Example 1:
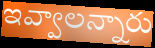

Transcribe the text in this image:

ఇవ్వాలన్నారు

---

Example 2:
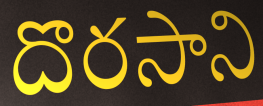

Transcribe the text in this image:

దొరసాని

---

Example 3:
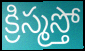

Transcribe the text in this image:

క్రిస్మస్తో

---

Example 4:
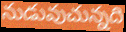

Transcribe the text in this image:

నుడువుచున్నది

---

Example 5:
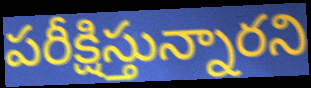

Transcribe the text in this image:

పరీక్షిస్తున్నారని